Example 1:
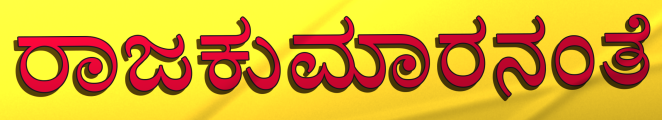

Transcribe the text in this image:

ರಾಜಕುಮಾರನಂತೆ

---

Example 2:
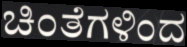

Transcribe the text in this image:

ಚಿಂತೆಗಳಿಂದ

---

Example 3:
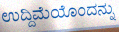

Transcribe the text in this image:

ಉದ್ದಿಮೆಯೊಂದನ್ನು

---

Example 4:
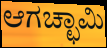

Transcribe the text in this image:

ಆಗಚ್ಛಾಮಿ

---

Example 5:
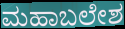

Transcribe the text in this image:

ಮಹಾಬಲೇಶ